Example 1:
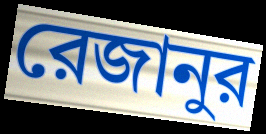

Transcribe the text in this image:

রেজানুর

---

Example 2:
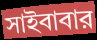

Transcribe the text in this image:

সাইবাবার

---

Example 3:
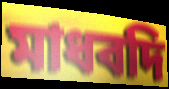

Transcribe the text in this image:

মাধবদি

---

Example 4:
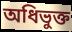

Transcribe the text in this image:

অধিভুক্ত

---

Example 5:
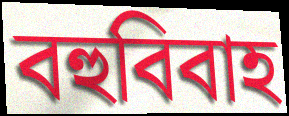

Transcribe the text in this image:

বহুবিবাহ